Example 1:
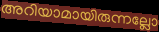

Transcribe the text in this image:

അറിയാമായിരുന്നല്ലോ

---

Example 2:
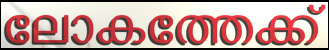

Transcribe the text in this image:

ലോകത്തേക്ക്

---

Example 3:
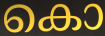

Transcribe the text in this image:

കൊ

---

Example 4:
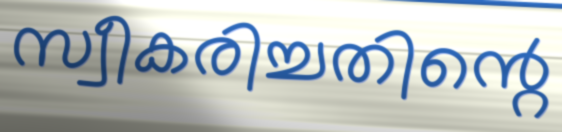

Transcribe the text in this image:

സ്വീകരിച്ചതിന്റെ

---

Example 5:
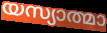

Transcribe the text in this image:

യസ്യാത്മാ